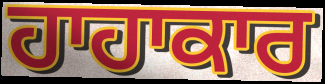
ਹਾਹਾਕਾਰ